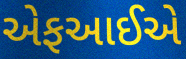
એફઆઈએ